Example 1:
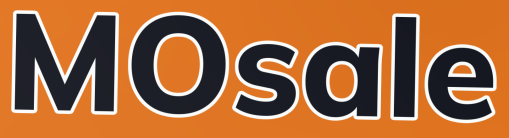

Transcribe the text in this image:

MOsale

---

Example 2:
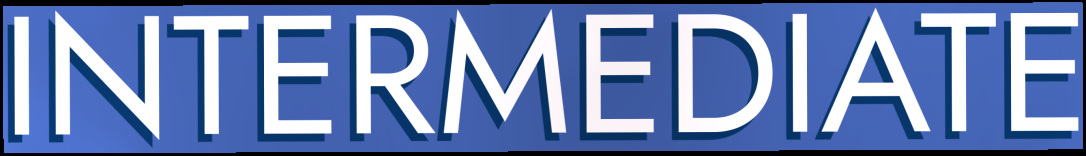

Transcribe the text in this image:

INTERMEDIATE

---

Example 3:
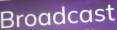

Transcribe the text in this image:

Broadcast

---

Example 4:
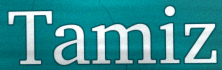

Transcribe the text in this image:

Tamiz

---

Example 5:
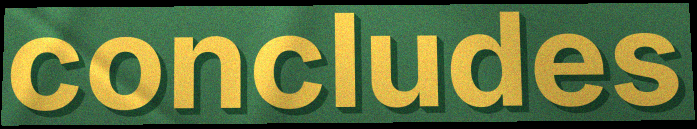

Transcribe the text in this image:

concludes